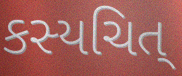
કસ્યચિત્